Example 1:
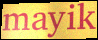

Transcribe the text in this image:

mayik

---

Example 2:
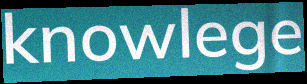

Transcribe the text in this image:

knowlege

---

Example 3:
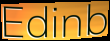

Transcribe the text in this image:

Edinb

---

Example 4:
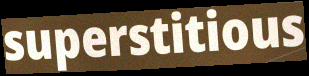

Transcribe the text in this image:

superstitious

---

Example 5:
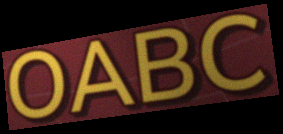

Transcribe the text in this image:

OABC